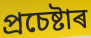
প্ৰচেষ্টাৰ